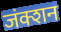
जंक्शन